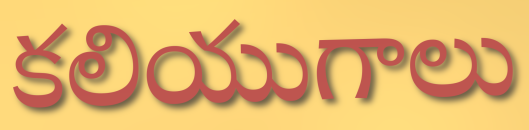
కలియుగాలు